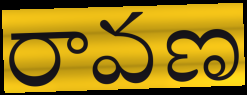
రావణ